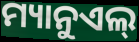
ମ୍ୟାନୁଏଲ୍